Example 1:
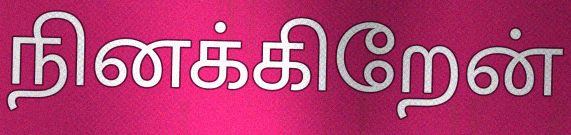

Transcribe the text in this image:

நினக்கிறேன்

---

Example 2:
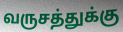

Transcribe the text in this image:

வருசத்துக்கு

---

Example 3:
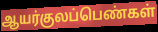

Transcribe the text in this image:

ஆயர்குலப்பெண்கள்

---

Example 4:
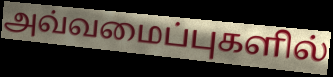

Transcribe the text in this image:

அவ்வமைப்புகளில்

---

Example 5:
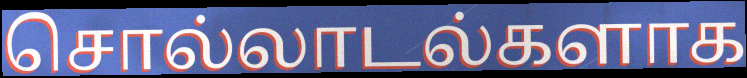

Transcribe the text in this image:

சொல்லாடல்களாக